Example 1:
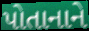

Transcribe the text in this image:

પોતાનાને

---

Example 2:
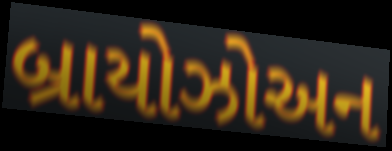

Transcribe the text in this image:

બ્રાયોઝોઅન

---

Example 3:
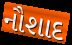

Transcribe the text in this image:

નૌશાદ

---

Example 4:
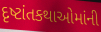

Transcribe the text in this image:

દૃષ્ટાંતકથાઓમાંની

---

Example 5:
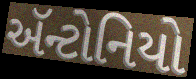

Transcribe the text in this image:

ઍન્ટોનિયો